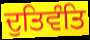
ਦੁਤਿਵੰਤਿ